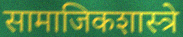
सामाजिकशास्त्रे